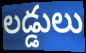
లడ్డులు